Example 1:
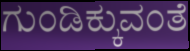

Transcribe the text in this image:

ಗುಂಡಿಕ್ಕುವಂತೆ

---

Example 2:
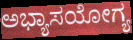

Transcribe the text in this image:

ಅಭ್ಯಾಸಯೋಗ್ಯ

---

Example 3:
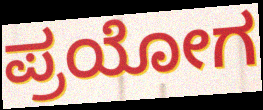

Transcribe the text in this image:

ಪ್ರಯೋಗ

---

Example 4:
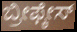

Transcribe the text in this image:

ಬ್ರೀಫ್ಕೇಸ್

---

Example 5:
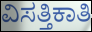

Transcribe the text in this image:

ವಿಸತ್ತಿಕಾತಿ